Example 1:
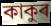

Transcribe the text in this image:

কাকুৰ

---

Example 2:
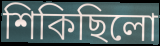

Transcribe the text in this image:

শিকিছিলো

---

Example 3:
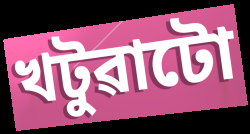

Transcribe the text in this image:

খটুৱাটো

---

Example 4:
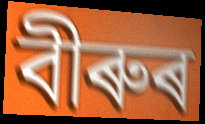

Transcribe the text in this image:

বীৰুৰ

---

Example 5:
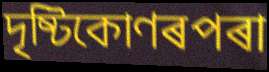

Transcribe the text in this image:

দৃষ্টিকোণৰপৰা